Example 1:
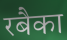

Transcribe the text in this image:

रबैका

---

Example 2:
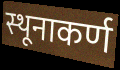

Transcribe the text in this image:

स्थूनाकर्ण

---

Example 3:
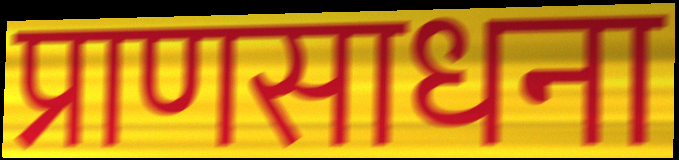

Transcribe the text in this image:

प्राणसाधना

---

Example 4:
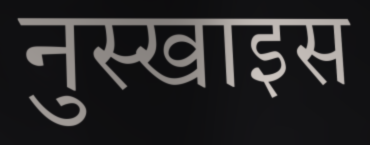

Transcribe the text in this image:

नुस्खाइस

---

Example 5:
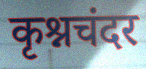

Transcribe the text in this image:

कृश्नचंदर